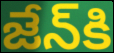
జేన్‌కి